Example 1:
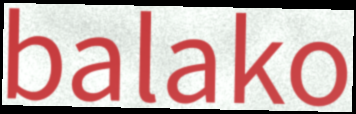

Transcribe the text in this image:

balako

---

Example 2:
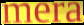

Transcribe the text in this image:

mera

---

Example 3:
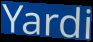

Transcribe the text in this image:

Yardi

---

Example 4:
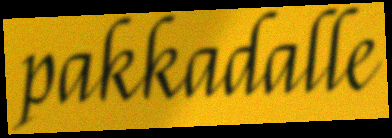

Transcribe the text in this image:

pakkadalle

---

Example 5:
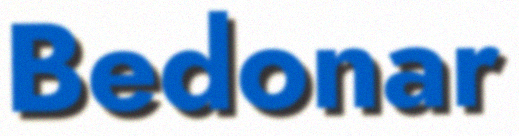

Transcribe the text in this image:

Bedonar